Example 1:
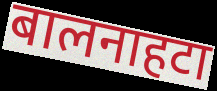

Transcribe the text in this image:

बालनाहटा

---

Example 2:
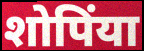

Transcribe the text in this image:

शोपिंया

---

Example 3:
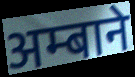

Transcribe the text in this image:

अम्बाने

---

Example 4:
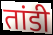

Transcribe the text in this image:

तांडी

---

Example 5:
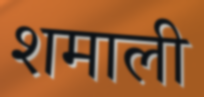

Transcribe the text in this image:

शमाली